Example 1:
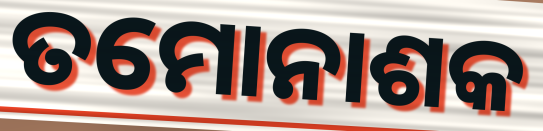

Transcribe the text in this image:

ତମୋନାଶକ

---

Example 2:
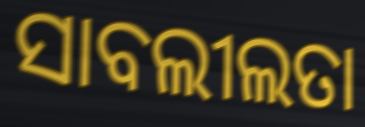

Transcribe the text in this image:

ସାବଲୀଲତା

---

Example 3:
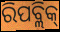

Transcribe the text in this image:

ରିପବ୍ଲିକ୍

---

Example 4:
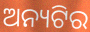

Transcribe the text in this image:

ଅନ୍ୟଟିର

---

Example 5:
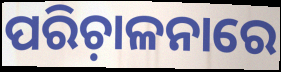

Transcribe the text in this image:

ପରିଚ଼ାଳନାରେ